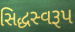
સિદ્ધસ્વરૂપ